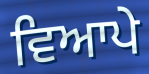
ਵਿਆਪੇ